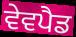
ਵੇਵਪੈਡ